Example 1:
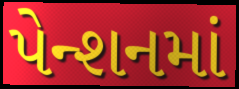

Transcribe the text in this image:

પેન્શનમાં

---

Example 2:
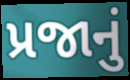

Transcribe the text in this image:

પ્રજાનું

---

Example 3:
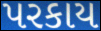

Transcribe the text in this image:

પરકાય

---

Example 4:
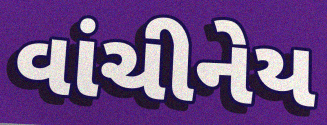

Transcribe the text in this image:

વાંચીનેય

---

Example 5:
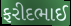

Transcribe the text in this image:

ફરીદભાઈ